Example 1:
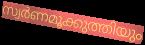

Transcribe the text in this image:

സ്വർണമൂക്കുത്തിയും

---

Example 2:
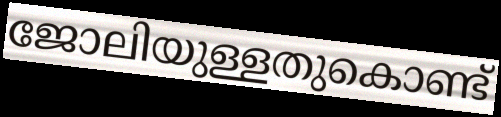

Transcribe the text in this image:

ജോലിയുള്ളതുകൊണ്ട്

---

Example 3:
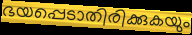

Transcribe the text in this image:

ഭയപ്പെടാതിരിക്കുകയും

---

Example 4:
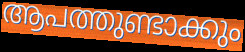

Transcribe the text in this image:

ആപത്തുണ്ടാക്കും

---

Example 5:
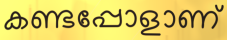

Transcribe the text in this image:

കണ്ടപ്പോളാണ്